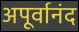
अपूर्वानंद